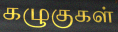
கழுகுகள்